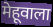
मेहूवाला